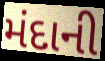
મંદાની